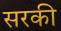
सरकी